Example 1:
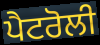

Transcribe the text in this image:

ਪੈਟਰੋਲੀ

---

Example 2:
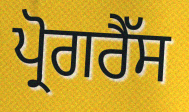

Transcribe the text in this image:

ਪ੍ਰੋਗਰੈੱਸ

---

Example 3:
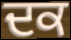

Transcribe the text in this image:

ਦਕ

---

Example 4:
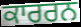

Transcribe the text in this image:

ਕਾਰਰਨ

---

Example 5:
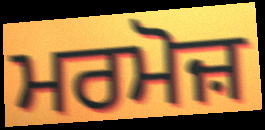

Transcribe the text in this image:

ਮਰਮੋਜ਼